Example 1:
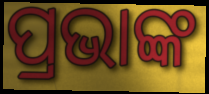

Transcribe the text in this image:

ପ୍ରଭାଙ୍କ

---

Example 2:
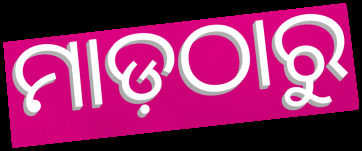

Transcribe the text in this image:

ମାଡ଼ଠାରୁ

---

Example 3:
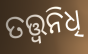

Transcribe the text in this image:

ତତ୍ତ୍ଵନିଧି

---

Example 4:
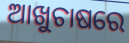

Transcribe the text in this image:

ଆଖୁଚାଷରେ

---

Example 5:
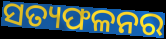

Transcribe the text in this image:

ସତ୍ୟଫଳନର